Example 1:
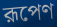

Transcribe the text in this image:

রূপেণ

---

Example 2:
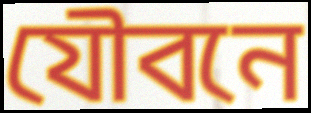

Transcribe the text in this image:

যৌবনে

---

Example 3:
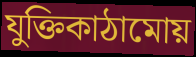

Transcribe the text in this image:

যুক্তিকাঠামোয়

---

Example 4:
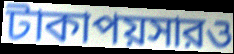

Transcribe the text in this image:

টাকাপয়সারও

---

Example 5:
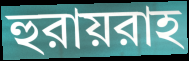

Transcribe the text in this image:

হুরায়রাহ